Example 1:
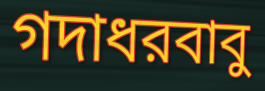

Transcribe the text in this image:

গদাধরবাবু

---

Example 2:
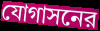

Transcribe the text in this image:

যোগাসনের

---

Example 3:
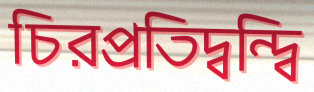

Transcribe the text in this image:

চিরপ্রতিদ্বন্দ্বি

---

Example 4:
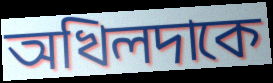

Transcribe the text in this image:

অখিলদাকে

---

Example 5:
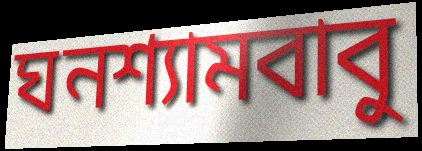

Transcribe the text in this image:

ঘনশ্যামবাবু